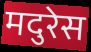
मदुरेस